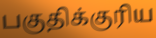
பகுதிக்குரிய